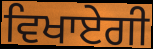
ਵਿਖਾਏਗੀ